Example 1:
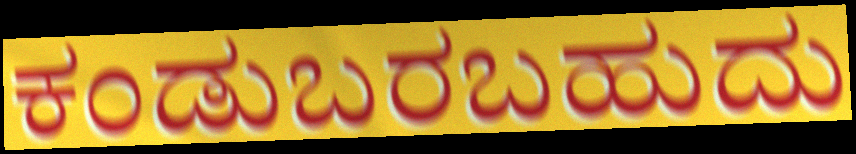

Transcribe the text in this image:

ಕಂಡುಬರಬಹುದು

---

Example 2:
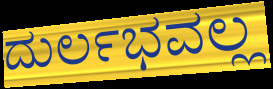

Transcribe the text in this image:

ದುರ್ಲಭವಲ್ಲ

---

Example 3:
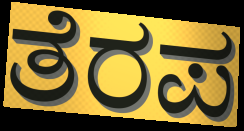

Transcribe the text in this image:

ತೆರಪ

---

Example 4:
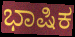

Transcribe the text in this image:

ಭಾಷಿಕ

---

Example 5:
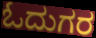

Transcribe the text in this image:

ಓದುಗರ